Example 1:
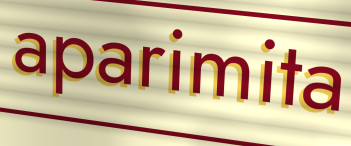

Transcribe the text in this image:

aparimita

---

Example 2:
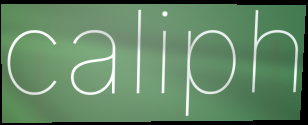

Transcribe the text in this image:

caliph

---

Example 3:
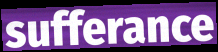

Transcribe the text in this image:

sufferance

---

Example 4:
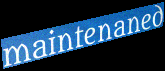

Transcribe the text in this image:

maintenaned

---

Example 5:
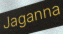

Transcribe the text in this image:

Jaganna